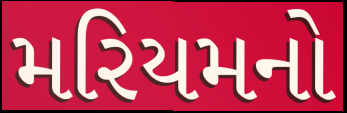
મરિયમનો